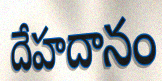
దేహదానం